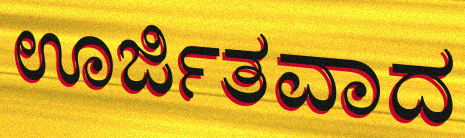
ಊರ್ಜಿತವಾದ